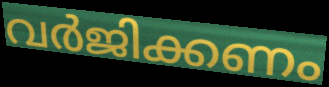
വർജിക്കണം